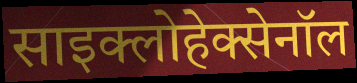
साइक्लोहेक्सेनॉल